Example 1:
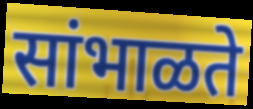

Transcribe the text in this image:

सांभाळते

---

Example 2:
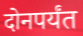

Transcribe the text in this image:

दोनपर्यंत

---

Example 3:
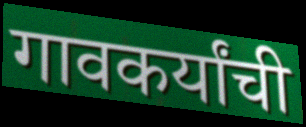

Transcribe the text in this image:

गावकर्यांची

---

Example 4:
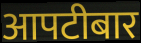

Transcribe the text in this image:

आपटीबार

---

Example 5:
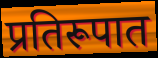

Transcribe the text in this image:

प्रतिरूपात